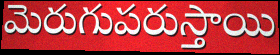
మెరుగుపరుస్తాయి